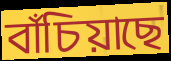
বাঁচিয়াছে